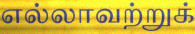
எல்லாவற்றுக்